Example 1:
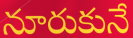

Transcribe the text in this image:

నూరుకునే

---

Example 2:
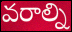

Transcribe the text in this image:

వరాల్ని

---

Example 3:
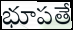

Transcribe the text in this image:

భూపతే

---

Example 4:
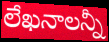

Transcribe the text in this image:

లేఖనాలన్నీ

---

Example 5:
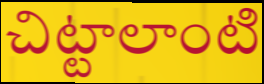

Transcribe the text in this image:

చిట్టాలాంటి